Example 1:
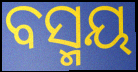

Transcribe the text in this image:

ବସ୍ମୟ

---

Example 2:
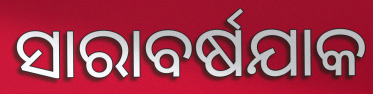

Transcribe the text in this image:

ସାରାବର୍ଷଯାକ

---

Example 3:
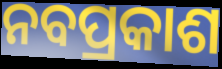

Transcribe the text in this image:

ନବପ୍ରକାଶ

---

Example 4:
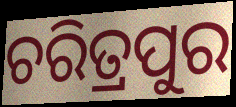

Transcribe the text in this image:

ଚରିତ୍ରପୁର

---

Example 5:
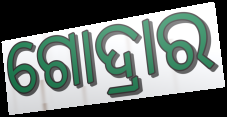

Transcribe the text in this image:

ଗୋଦ୍ରାର